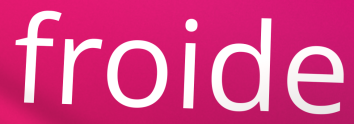
froide